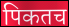
पिकतच